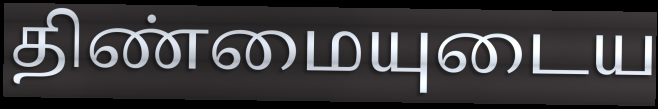
திண்மையுடைய